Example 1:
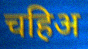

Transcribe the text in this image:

चहिअ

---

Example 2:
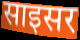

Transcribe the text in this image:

साइसर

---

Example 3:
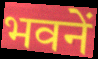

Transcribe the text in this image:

भवनें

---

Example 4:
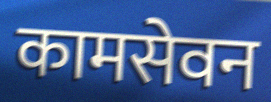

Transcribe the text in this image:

कामसेवन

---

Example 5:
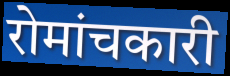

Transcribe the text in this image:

रोमांचकारी